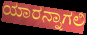
ಯಾರನ್ನಾಗಲಿ